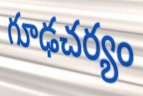
గూఢచర్యం